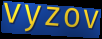
vyzov